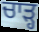
ਚਾਡ਼੍ਹ